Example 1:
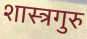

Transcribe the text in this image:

शास्त्रगुरु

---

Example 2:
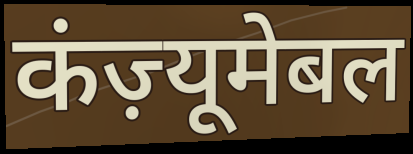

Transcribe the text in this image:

कंज़्यूमेबल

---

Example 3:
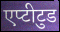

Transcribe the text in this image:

एप्टीटुड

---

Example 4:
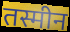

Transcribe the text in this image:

तस्मीन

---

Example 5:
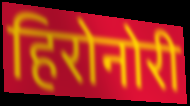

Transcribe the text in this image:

हिरोनोरी